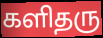
களிதரு